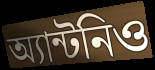
অ্যান্টনিও